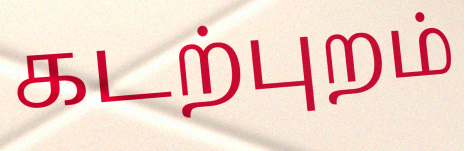
கடற்புறம்